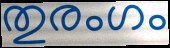
തുരംഗം